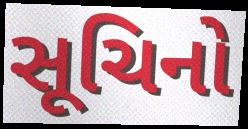
સૂચિનો